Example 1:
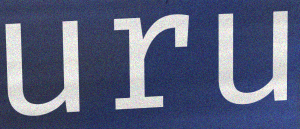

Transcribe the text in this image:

uru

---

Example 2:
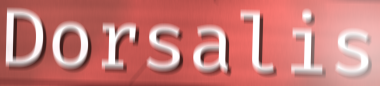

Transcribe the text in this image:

Dorsalis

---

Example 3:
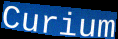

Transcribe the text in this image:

Curium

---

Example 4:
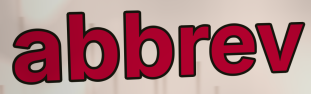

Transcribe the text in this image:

abbrev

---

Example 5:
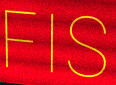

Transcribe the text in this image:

FIS